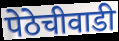
पेठेचीवाडी